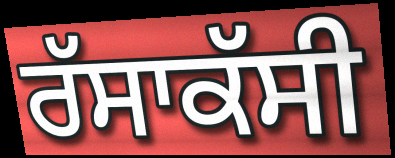
ਰੱਸਾਕੱਸੀ